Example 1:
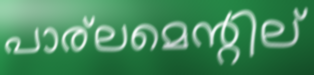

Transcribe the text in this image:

പാര്ലമെന്റില്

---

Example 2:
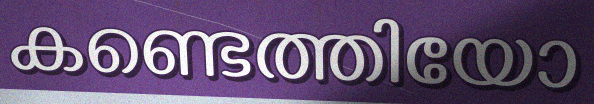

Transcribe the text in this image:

കണ്ടെത്തിയോ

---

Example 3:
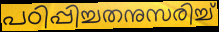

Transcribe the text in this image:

പഠിപ്പിച്ചതനുസരിച്ച്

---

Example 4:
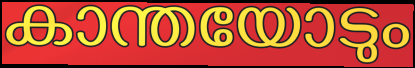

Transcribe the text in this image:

കാന്തയോടും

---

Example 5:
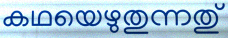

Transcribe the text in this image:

കഥയെഴുതുന്നതു്